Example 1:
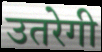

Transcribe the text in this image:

उतरेगी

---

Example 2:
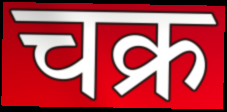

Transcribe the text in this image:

चक्र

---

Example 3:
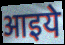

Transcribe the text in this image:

आइये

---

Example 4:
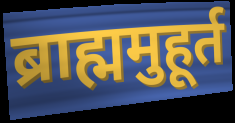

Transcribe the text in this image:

ब्राह्ममुहूर्त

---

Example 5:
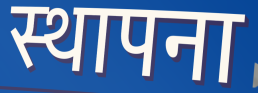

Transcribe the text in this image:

स्थापना